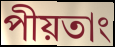
পীয়তাং